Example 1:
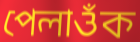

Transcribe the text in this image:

পেলাওঁক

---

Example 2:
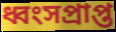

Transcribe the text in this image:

ধ্বংসপ্ৰাপ্ত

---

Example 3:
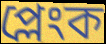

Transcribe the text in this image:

প্লেংক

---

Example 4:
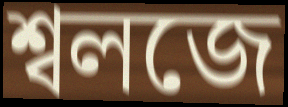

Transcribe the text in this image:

শ্বলজে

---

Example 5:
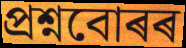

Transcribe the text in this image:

প্ৰশ্নবোৰৰ